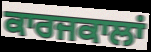
ਕਾਰਜਕਾਲਾਂ